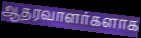
ஆதரவாளர்களாக